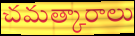
చమత్కారాలు